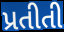
પ્રતીતી